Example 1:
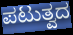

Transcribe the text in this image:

ಪಟುತ್ವದ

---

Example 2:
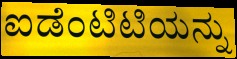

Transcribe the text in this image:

ಐಡೆಂಟಿಟಿಯನ್ನು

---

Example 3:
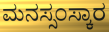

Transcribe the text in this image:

ಮನಸ್ಸಂಸ್ಕಾರ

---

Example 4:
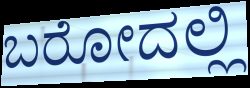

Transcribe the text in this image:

ಬರೋದಲ್ಲಿ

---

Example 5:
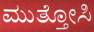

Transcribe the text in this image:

ಮುತ್ತೋಸಿ